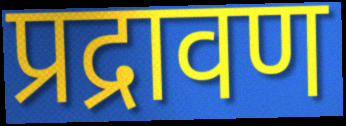
प्रद्रावण